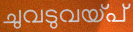
ചുവടുവയ്പ്